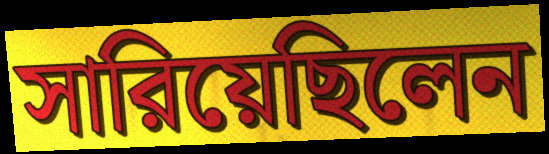
সারিয়েছিলেন